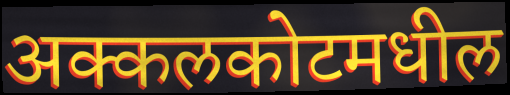
अक्कलकोटमधील